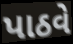
પાઠવે